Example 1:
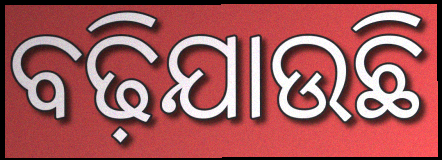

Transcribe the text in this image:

ବଢ଼ିଯାଉଛି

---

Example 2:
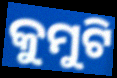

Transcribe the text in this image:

କୁମୁଟି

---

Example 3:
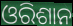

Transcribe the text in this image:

ଓରିଶାନ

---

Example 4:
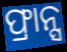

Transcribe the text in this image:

ଫ୍ରାନ୍ସ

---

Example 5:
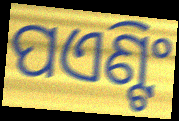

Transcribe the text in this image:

ପଏଣ୍ଟିଂ